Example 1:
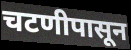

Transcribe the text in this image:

चटणीपासून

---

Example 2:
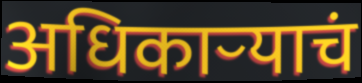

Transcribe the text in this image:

अधिकाऱ्याचं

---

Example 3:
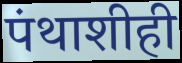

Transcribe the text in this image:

पंथाशीही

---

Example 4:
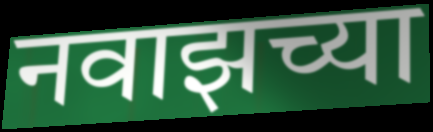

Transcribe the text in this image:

नवाझच्या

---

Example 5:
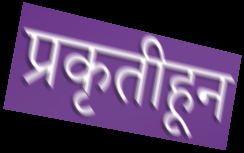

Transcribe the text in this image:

प्रकृतीहून